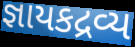
જ્ઞાયકદ્રવ્ય